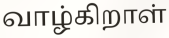
வாழ்கிறாள்